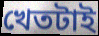
খেতটাই